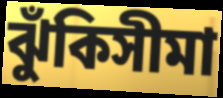
ঝুঁকিসীমা